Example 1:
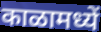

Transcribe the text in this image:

काळामध्यें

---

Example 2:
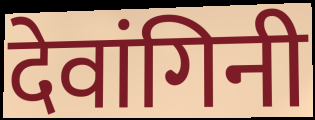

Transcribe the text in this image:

देवांगिनी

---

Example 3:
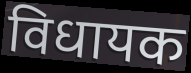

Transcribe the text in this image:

विधायक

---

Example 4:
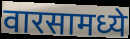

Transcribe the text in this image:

वारसामध्ये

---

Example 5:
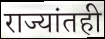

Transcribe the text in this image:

राज्यांतही